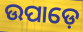
ଉପାଡ଼େ